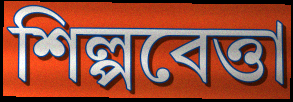
শিল্পবেত্তা